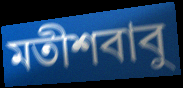
মতীশবাবু